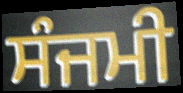
ਸੰਜਮੀ